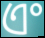
ଏଂ